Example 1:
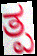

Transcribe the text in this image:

ತ್ಪ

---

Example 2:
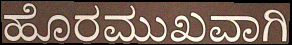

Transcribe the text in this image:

ಹೊರಮುಖವಾಗಿ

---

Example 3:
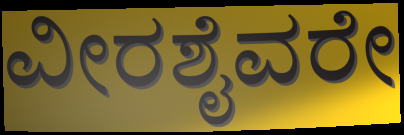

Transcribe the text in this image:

ವೀರಶೈವರೇ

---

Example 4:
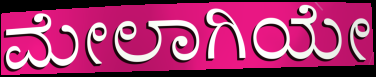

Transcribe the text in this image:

ಮೇಲಾಗಿಯೇ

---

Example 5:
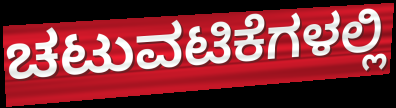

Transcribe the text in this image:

ಚಟುವಟಿಕೆಗಳಲ್ಲಿ